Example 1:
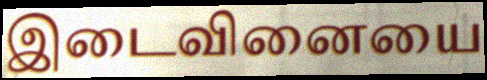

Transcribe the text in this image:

இடைவினையை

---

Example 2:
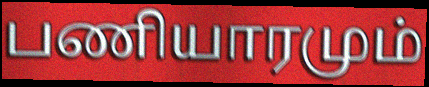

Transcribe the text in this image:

பணியாரமும்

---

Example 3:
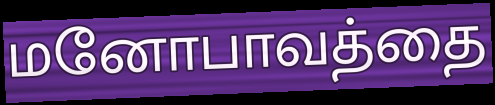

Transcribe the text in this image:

மனோபாவத்தை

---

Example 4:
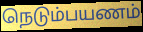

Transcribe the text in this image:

நெடும்பயணம்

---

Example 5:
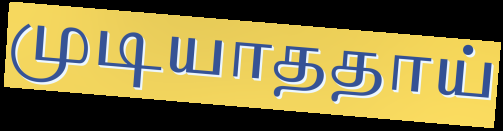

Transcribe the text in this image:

முடியாததாய்